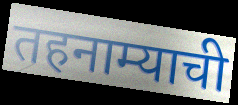
तहनाम्याची